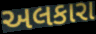
અલકારા